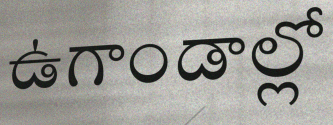
ఉగాండాల్లో